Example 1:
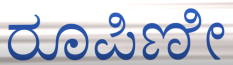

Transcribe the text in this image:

ರೂಪಿಣೀ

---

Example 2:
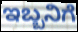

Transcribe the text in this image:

ಇಬ್ಬನಿಗೆ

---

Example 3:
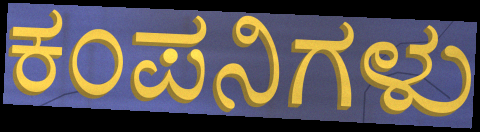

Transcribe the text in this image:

ಕಂಪನಿಗಳು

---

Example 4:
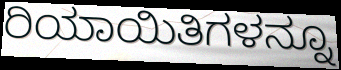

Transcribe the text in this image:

ರಿಯಾಯಿತಿಗಳನ್ನೂ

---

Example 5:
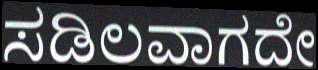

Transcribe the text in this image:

ಸಡಿಲವಾಗದೇ